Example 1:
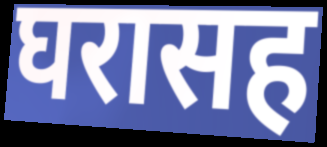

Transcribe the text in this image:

घरासह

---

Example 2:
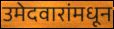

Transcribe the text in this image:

उमेदवारांमधून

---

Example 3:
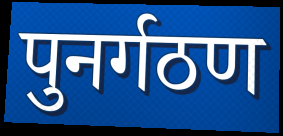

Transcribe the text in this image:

पुनर्गठण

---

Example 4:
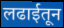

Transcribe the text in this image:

लढाईतून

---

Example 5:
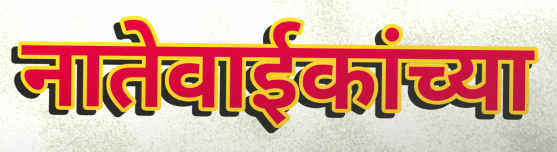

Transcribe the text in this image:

नातेवाईकांच्या